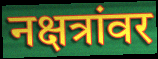
नक्षत्रांवर